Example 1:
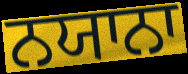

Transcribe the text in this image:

ਨਯਾਨਾ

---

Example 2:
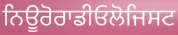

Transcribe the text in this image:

ਨਿਊਰੋਰਾਡੀਓਲੋਜਿਸਟ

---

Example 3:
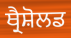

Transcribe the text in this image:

ਥ੍ਰੈਸ਼ੋਲਡ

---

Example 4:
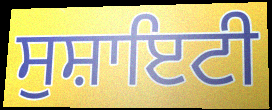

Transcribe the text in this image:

ਸੁਸ਼ਾਇਟੀ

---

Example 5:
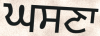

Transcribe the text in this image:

ਘਸਣਾ